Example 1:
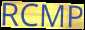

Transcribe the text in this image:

RCMP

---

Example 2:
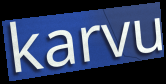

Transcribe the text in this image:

karvu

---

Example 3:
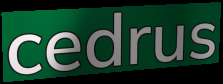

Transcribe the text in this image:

cedrus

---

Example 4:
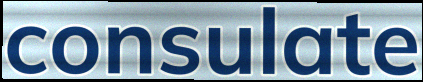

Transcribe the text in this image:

consulate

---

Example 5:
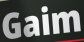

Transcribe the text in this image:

Gaim